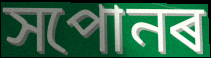
সপোনৰ